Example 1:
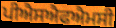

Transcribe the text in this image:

ਪੀਐਸਐਫਐਮਸੀ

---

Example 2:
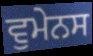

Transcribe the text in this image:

ਵੁਮੇਨਸ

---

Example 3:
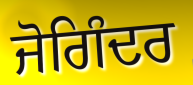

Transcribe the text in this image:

ਜੋਗਿੰਦਰ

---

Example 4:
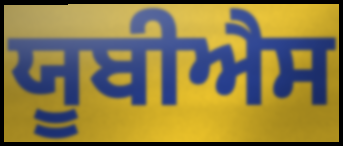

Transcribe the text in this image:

ਯੂਬੀਐਸ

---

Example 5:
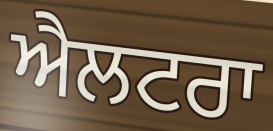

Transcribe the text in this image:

ਐਲਟਰਾ